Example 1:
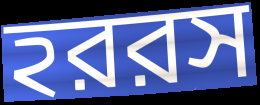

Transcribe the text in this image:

হররস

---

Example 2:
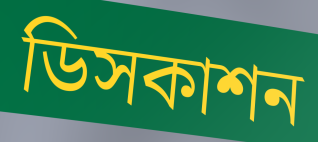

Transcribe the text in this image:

ডিসকাশন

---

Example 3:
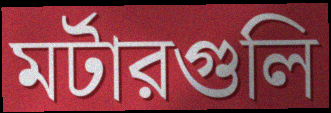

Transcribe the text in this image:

মর্টারগুলি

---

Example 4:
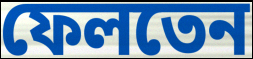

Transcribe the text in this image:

ফেলতেন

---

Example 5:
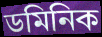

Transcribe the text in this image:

ডমিনিক